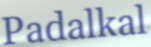
Padalkal